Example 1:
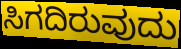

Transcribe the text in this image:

ಸಿಗದಿರುವುದು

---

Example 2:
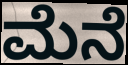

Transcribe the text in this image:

ಮೆನೆ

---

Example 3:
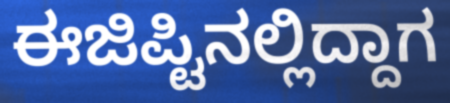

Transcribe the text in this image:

ಈಜಿಪ್ಟಿನಲ್ಲಿದ್ದಾಗ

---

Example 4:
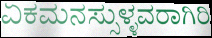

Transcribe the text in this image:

ಏಕಮನಸ್ಸುಳ್ಳವರಾಗಿರಿ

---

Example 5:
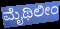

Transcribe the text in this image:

ಮೈಥಿಲೀಂ